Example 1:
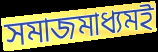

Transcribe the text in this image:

সমাজমাধ্যমই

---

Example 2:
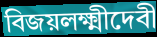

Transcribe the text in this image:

বিজয়লক্ষ্মীদেবী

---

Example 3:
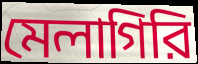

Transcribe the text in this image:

মেলাগিরি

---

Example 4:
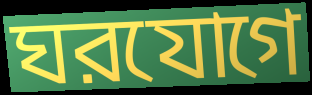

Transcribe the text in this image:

ঘরযোগে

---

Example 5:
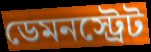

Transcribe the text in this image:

ডেমনস্ট্রেট